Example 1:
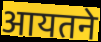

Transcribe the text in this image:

आयतने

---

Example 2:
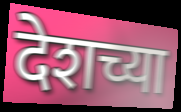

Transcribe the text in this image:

देशच्या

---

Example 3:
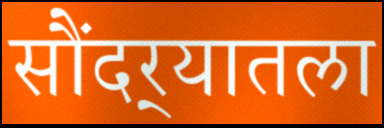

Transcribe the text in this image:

सौंदर्यातला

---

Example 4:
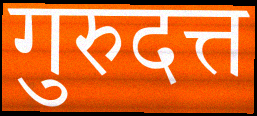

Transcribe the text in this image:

गुरुदत्त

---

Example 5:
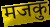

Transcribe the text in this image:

मजकु